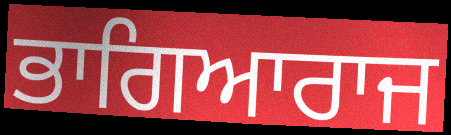
ਭਾਗਿਆਰਾਜ